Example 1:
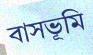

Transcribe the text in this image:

বাসভূমি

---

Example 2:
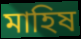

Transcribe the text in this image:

মাহিষ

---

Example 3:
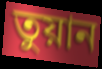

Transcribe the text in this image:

তুয়ান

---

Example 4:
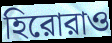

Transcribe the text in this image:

হিরোরাও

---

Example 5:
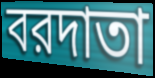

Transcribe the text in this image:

বরদাতা